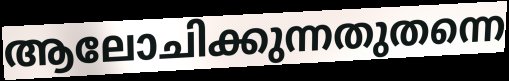
ആലോചിക്കുന്നതുതന്നെ